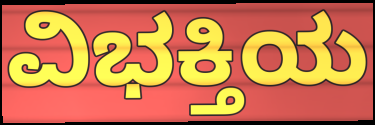
ವಿಭಕ್ತಿಯ